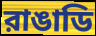
রাঙাডি